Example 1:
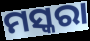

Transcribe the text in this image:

ମସ୍କରା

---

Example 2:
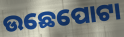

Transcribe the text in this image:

ଉଛେପୋଟା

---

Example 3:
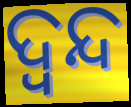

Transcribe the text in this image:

ଦ୍ବନ୍ଦ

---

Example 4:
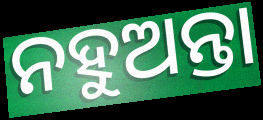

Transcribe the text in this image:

ନହୁଅନ୍ତା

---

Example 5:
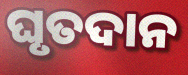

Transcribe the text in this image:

ଘୃତଦାନ